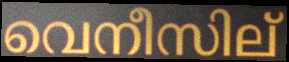
വെനീസില്